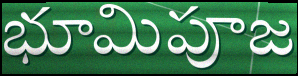
భూమిపూజ